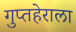
गुप्तहेराला